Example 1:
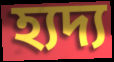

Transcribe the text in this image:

হ্যদ্য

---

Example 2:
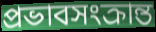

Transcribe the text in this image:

প্রভাবসংক্রান্ত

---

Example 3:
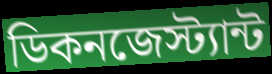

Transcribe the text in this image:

ডিকনজেস্ট্যান্ট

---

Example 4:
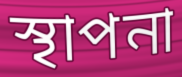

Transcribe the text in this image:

স্থাপনা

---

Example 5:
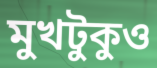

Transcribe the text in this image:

মুখটুকুও